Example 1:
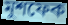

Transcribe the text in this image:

মুশফেক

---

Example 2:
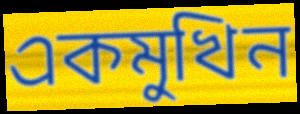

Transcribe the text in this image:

একমুখিন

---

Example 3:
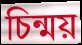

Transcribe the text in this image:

চিন্ময়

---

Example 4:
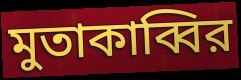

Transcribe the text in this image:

মুতাকাব্বির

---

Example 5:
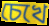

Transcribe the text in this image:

চেখে